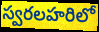
స్వరలహరిలో